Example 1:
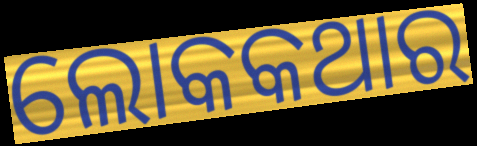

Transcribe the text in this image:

ଲୋକକଥାର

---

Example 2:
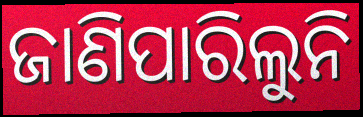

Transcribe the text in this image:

ଜାଣିପାରିଲୁନି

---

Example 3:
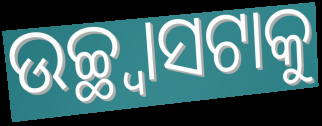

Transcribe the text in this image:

ଉଚ୍ଛ୍ୱାସଟାକୁ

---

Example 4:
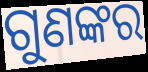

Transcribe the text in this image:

ଗୁଣଙ୍କର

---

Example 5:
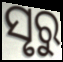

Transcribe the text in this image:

ସୃରୁ